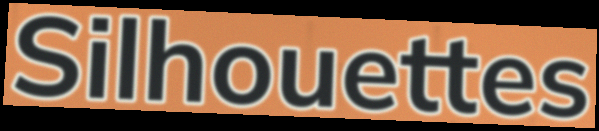
Silhouettes